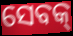
ସେବକ୍